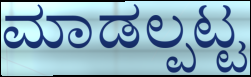
ಮಾಡಲ್ಪಟ್ಟ